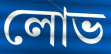
লোভ